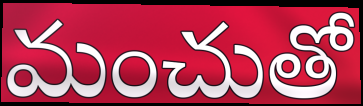
మంచుతో